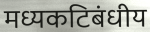
मध्यकटिबंधीय